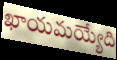
ఖాయమయ్యేది